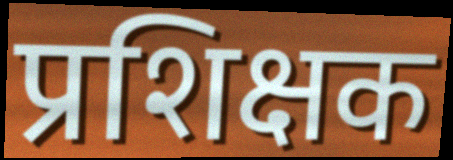
प्रशिक्षक